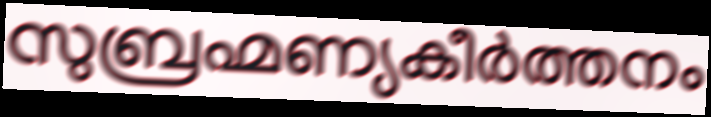
സുബ്രഹ്മണ്യകീർത്തനം